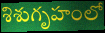
శిశుగృహంలో